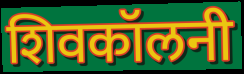
शिवकॉलनी